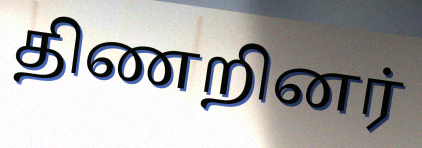
திணறினர்